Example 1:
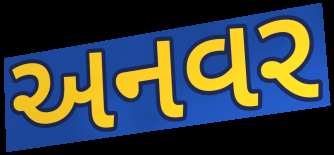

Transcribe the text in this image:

અનવર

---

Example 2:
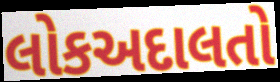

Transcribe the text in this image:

લોકઅદાલતો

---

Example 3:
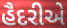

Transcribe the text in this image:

હૈદરીએ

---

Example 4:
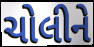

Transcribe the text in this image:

ચોલીને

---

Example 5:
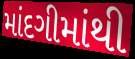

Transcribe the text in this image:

માંદગીમાંથી